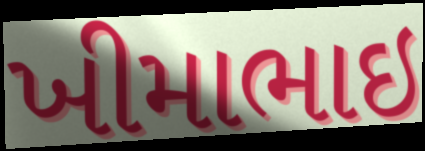
ખીમાભાઇ